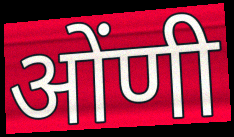
ओंणी